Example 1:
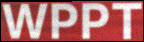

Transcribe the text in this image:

WPPT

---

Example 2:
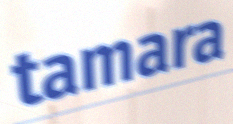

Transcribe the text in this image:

tamara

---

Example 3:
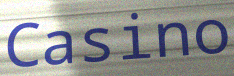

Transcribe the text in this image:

Casino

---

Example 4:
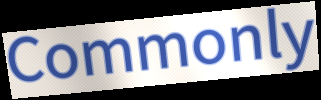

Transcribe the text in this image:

Commonly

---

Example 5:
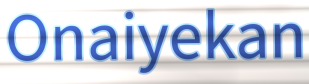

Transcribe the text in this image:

Onaiyekan